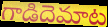
గాడిదెమాట